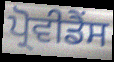
ਪ੍ਰੋਵੀਡੈਂਸ